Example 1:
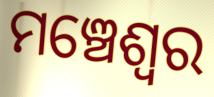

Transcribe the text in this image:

ମଞ୍ଚେଶ୍ଵର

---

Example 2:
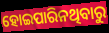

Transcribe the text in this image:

ହୋଇପାରିନଥିବାରୁ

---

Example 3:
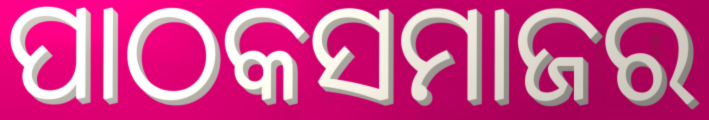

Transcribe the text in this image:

ପାଠକସମାଜର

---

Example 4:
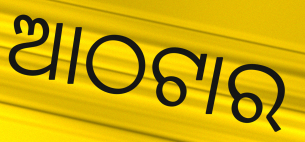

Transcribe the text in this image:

ଆଠଟାର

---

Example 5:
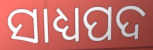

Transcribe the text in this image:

ସାଧ୍ଯପଦ